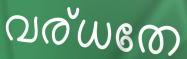
വര്ധതേ